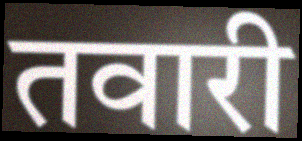
तवारी